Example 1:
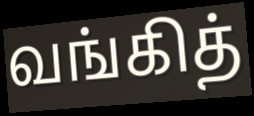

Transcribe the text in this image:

வங்கித்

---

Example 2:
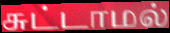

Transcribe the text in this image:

சுட்டாமல்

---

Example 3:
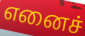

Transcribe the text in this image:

எனைச்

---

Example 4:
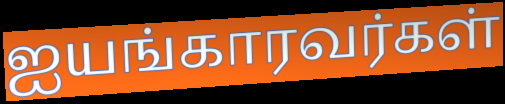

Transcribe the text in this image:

ஐயங்காரவர்கள்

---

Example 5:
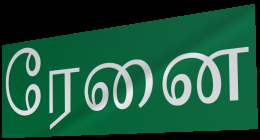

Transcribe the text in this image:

ரேனை